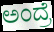
ಅಂದ್ರೆ